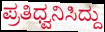
ಪ್ರತಿಧ್ವನಿಸಿದ್ದು